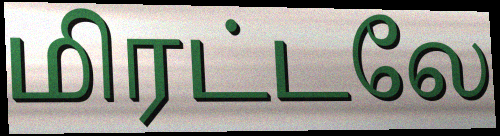
மிரட்டலே